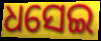
ଧସେଇ